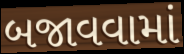
બજાવવામાં